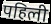
पहिली